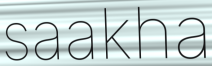
saakha